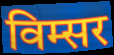
विम्सर